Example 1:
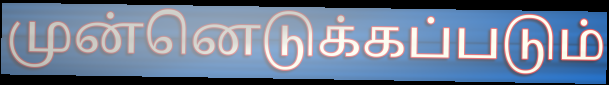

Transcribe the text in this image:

முன்னெடுக்கப்படும்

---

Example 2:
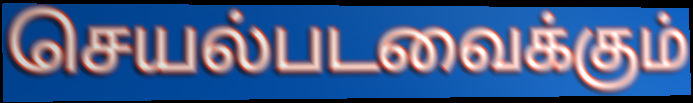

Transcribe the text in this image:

செயல்படவைக்கும்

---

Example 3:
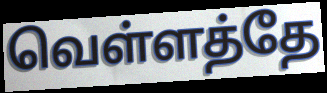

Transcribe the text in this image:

வெள்ளத்தே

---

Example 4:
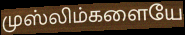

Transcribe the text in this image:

முஸ்லிம்களையே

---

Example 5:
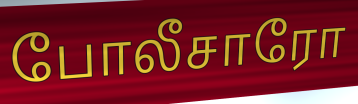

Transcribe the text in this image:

போலீசாரோ